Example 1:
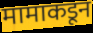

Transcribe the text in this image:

मामाकडून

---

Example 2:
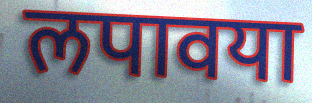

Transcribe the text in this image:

लपावया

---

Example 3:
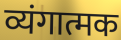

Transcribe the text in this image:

व्यंगात्मक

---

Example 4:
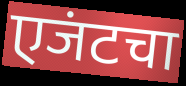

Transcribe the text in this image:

एजंटचा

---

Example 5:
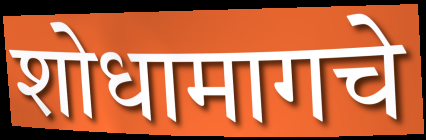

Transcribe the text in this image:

शोधामागचे